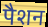
पैशन